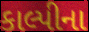
કાલ્પીના